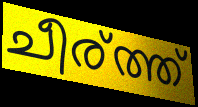
ചീര്ത്ത്